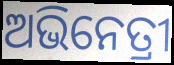
ଅଭିନେତ୍ରୀ